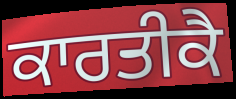
ਕਾਰਤੀਕੈ